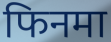
फिनमा